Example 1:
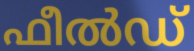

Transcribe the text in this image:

ഫീൽഡ്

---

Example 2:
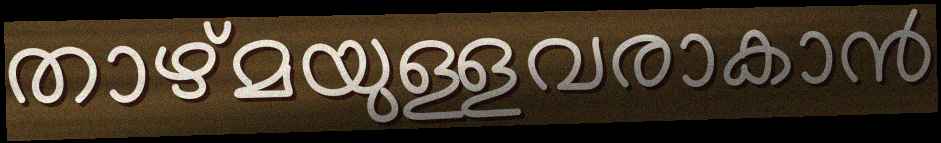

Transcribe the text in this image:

താഴ്മയുള്ളവരാകാൻ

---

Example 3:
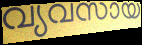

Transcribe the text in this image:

വ്യവസായ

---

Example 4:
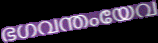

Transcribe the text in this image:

ഭഗവന്തംയേവ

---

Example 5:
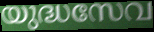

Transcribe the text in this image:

യുദ്ധസേവ